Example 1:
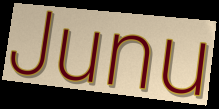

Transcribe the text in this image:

Junu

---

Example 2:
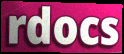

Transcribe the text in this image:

rdocs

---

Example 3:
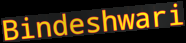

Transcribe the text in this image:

Bindeshwari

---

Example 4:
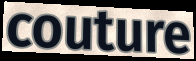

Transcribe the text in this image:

couture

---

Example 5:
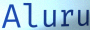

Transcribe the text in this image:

Aluru